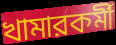
খামারকর্মী